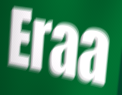
Eraa